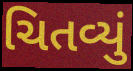
ચિતવ્યું